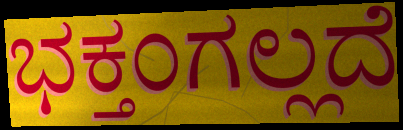
ಭಕ್ತಂಗಲ್ಲದೆ